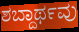
ಶಬ್ದಾರ್ಥವು